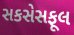
સકસેસફૂલ